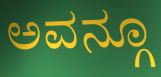
ಅವನ್ಗೂ